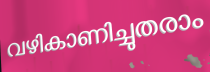
വഴികാണിച്ചുതരാം